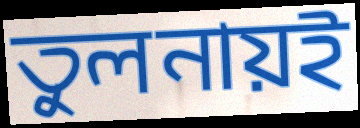
তুলনায়ই